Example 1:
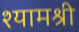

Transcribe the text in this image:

श्यामश्री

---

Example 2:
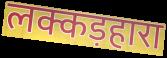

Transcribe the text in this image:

लक्कड़हारा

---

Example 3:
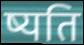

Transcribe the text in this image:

ष्यति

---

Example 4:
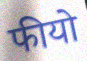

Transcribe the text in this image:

फीयो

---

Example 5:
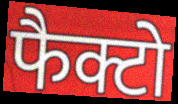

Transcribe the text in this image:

फैक्टो